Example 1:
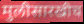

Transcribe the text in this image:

मुलीसारखीच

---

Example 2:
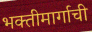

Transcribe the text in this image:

भक्तीमार्गाची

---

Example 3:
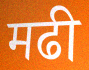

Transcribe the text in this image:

मढी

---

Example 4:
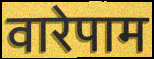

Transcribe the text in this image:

वारेपाम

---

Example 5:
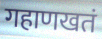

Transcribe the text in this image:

गहाणखतं